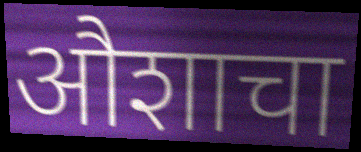
औशाचा